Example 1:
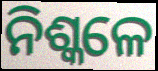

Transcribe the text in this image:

ନିଶ୍କଳେ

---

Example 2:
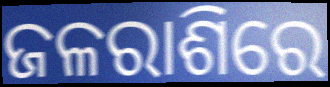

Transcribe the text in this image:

ଜଳରାଶିରେ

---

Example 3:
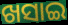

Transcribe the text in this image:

ଖସାଇ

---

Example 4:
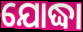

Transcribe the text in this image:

ଯୋଦ୍ଧା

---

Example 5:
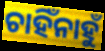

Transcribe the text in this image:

ଚାହିଁନାହୁଁ